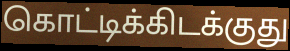
கொட்டிக்கிடக்குது